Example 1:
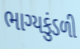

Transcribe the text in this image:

ભાગ્યકુંડળી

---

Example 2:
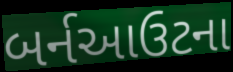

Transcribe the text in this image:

બર્નઆઉટના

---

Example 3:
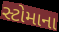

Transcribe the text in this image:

સ્ટોમાના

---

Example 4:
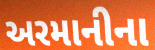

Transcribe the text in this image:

અરમાનીના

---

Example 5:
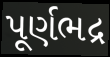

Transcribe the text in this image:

પૂર્ણભદ્ર